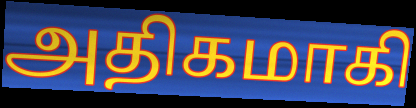
அதிகமாகி